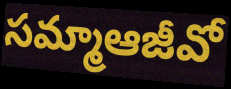
సమ్మాఆజీవో